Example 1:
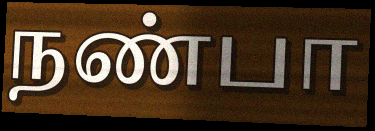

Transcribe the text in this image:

நண்பா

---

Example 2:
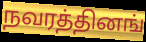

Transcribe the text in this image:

நவரத்தினங்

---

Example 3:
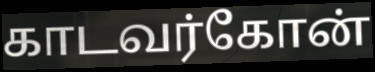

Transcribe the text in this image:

காடவர்கோன்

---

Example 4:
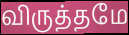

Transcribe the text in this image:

விருத்தமே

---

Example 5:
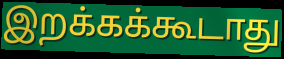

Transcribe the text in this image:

இறக்கக்கூடாது